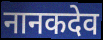
नानकदेव